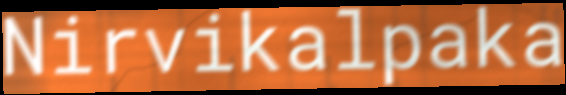
Nirvikalpaka